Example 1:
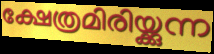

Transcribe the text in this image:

ക്ഷേത്രമിരിയ്ക്കുന്ന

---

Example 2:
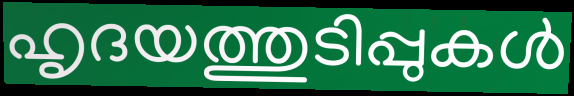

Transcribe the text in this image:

ഹൃദയത്തുടിപ്പുകൾ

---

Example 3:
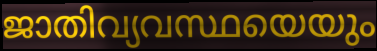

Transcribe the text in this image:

ജാതിവ്യവസ്ഥയെയും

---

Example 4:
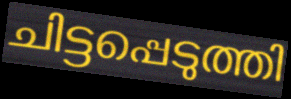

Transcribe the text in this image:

ചിട്ടപ്പെടുത്തി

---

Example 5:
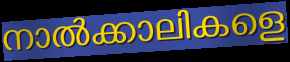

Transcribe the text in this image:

നാൽക്കാലികളെ